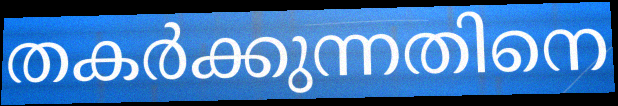
തകർക്കുന്നതിനെ